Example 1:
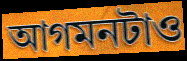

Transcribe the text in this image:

আগমনটাও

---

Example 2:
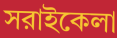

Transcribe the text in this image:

সরাইকেলা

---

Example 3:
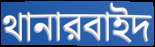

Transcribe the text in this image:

থানারবাইদ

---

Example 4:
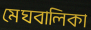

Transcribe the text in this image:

মেঘবালিকা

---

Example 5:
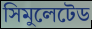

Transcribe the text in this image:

সিমুলেটেড